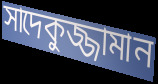
সাদেকুজ্জামান